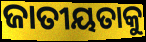
ଜାତୀୟତାକୁ